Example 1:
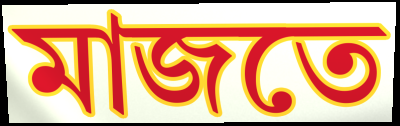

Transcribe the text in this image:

মাজতে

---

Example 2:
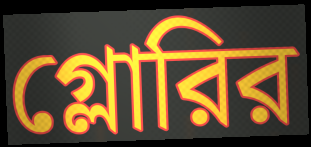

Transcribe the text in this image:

গ্লোরির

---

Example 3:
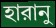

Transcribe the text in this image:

হারানু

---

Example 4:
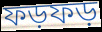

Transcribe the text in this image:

ফড়ফড়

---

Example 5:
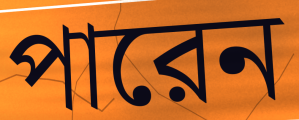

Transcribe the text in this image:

পারেন